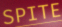
SPITE